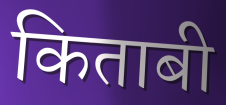
किताबी